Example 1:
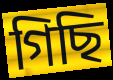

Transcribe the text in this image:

গিছি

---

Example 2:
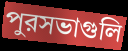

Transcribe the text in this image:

পুরসভাগুলি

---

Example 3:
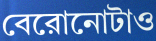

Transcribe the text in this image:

বেরোনোটাও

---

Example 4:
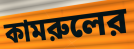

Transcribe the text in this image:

কামরুলের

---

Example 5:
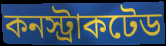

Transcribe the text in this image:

কনস্ট্রাকটেড